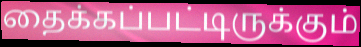
தைக்கப்பட்டிருக்கும்